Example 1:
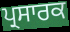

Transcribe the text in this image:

ਪ੍ਰਸਾਰਕ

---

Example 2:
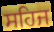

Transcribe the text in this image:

ਸਹਿਜ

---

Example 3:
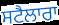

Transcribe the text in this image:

ਸਟੈਲਾਰਾ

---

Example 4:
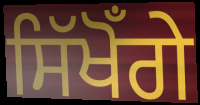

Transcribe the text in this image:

ਸਿੱਖੋਁਗੇ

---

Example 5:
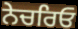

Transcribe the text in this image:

ਨੇਚਰਿਓ